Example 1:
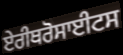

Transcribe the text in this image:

ਏਰੀਥਰੋਸਾਈਟਸ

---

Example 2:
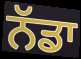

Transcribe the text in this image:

ਨੱਡਾ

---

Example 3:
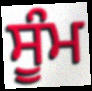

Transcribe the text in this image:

ਸੂੰਮ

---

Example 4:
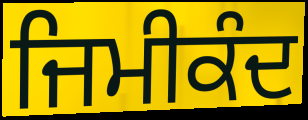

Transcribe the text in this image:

ਜਿਮੀਕੰਦ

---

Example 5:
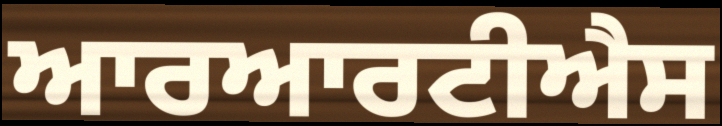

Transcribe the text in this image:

ਆਰਆਰਟੀਐਸ